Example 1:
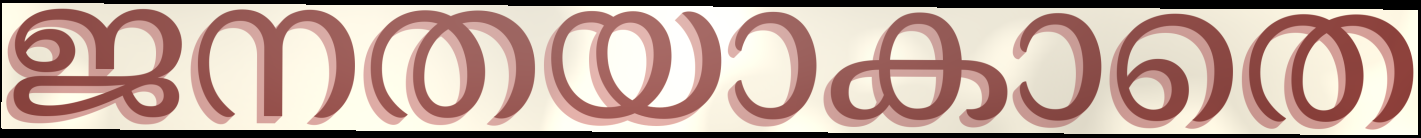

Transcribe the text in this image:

ജനതയാകാതെ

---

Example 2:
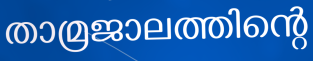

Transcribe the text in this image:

താമ്രജാലത്തിന്റെ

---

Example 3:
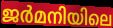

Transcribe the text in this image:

ജർമനിയിലെ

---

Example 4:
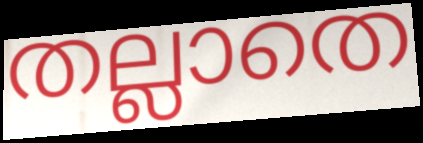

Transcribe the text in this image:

തല്ലാതെ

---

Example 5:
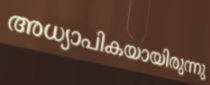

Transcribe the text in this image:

അധ്യാപികയായിരുന്നു